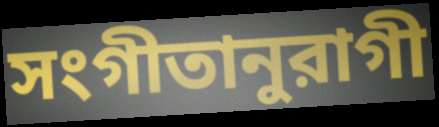
সংগীতানুরাগী